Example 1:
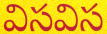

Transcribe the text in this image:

విసవిస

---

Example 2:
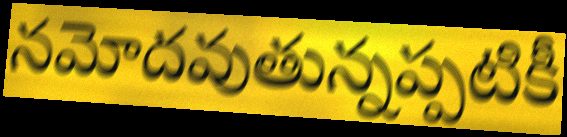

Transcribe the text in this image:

నమోదవుతున్నప్పటికీ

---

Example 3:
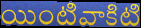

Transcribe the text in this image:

యింటివాకిటి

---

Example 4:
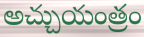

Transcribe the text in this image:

అచ్చుయంత్రం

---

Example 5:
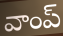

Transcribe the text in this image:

వాంప్